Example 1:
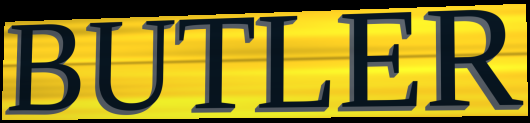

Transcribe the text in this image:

BUTLER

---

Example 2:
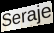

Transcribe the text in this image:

Seraje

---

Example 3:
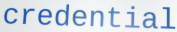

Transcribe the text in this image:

credential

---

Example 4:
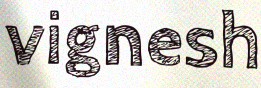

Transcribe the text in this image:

vignesh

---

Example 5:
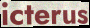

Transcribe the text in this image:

icterus